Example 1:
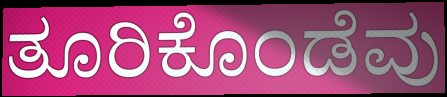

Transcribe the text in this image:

ತೂರಿಕೊಂಡೆವು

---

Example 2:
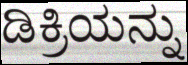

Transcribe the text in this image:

ಡಿಕ್ರಿಯನ್ನು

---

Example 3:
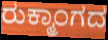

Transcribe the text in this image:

ರುಕ್ಮಾಂಗದ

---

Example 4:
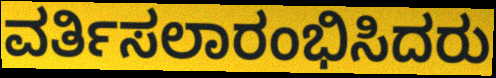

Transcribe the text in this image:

ವರ್ತಿಸಲಾರಂಭಿಸಿದರು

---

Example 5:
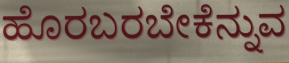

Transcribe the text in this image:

ಹೊರಬರಬೇಕೆನ್ನುವ